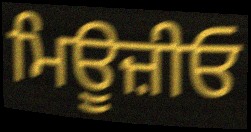
ਮਿਊਜ਼ੀਓ